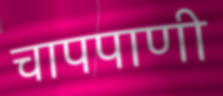
चापपाणी